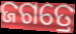
ଜଗତ୍ରେ